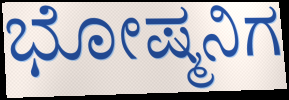
ಭೋಷ್ಮನಿಗ